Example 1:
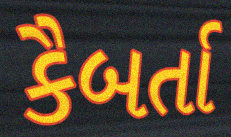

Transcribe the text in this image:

કૈબર્તા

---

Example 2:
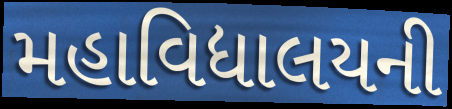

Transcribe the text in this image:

મહાવિદ્યાલયની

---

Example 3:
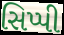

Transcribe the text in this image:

સિપ્પી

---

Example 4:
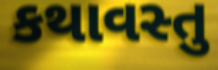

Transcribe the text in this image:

કથાવસ્તુ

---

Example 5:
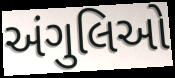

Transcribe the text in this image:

અંગુલિઓ